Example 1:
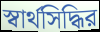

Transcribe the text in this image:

স্বার্থসিদ্ধির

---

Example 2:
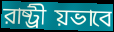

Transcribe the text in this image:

রাষ্ট্রীয়ভাবে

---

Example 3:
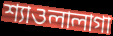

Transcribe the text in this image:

শ্যাওলালাগা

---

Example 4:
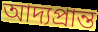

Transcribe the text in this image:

আদ্যপ্রান্ত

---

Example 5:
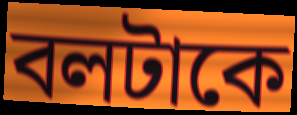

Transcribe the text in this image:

বলটাকে